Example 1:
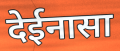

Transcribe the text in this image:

देईनासा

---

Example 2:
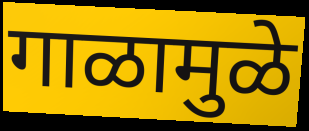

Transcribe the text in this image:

गाळामुळे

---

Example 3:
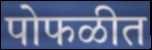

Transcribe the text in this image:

पोफळीत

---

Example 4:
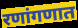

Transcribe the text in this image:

रणांगणात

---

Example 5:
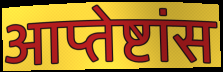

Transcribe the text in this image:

आप्तेष्टांस